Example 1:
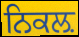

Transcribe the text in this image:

ਨਿਕਲ਼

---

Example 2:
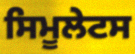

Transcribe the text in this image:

ਸਿਮੂਲੇਟਸ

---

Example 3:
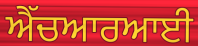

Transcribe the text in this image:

ਐੱਚਆਰਆਈ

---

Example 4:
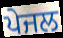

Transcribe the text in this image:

ਪੇਜਲ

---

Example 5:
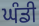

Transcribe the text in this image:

ਘੰਡੀ